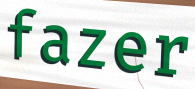
fazer